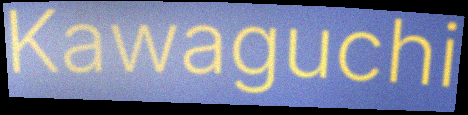
Kawaguchi